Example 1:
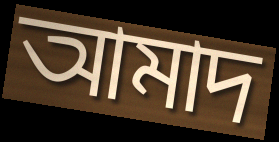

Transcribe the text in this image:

আমাদ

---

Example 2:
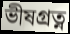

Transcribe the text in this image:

ভীষগ্ৰত্ন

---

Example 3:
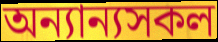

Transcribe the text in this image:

অন্যান্যসকল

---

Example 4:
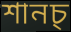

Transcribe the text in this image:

শানচ্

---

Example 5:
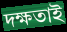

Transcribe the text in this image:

দক্ষতাই